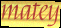
matey